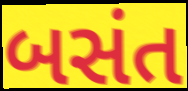
બસંત